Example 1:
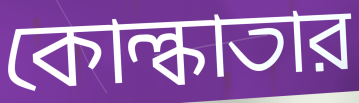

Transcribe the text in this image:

কোল্কাতার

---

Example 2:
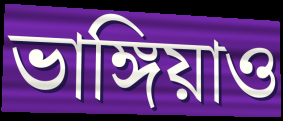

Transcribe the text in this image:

ভাঙ্গিয়াও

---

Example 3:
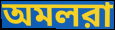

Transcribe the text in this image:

অমলরা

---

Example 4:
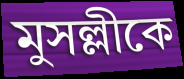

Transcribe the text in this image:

মুসল্লীকে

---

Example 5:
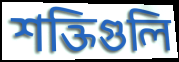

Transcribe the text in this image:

শক্তিগুলি